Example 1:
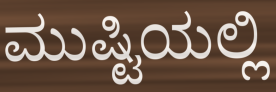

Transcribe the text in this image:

ಮುಷ್ಟಿಯಲ್ಲಿ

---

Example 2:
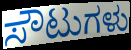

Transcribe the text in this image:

ಸೌಟುಗಳು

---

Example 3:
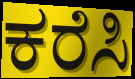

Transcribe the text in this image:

ಕರೆಸಿ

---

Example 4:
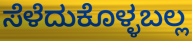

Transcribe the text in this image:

ಸೆಳೆದುಕೊಳ್ಳಬಲ್ಲ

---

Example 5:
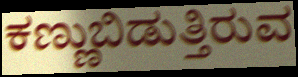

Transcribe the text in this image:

ಕಣ್ಣುಬಿಡುತ್ತಿರುವ